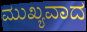
ಮುಖ್ಯವಾದ